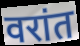
वरांत